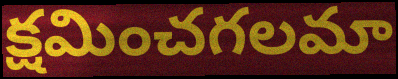
క్షమించగలమా